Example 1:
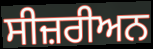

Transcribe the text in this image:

ਸੀਜ਼ਰੀਅਨ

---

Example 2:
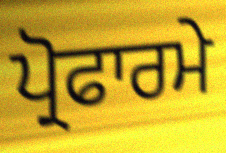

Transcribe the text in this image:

ਪ੍ਰੋਫਾਰਮੇ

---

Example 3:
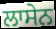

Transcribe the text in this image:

ਲਾਸੇਨ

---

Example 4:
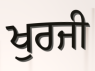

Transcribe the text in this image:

ਖੁਰਜੀ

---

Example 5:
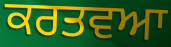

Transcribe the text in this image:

ਕਰਤਵਆ